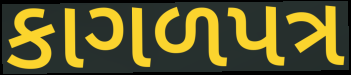
કાગળપત્ર